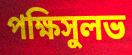
পক্ষিসুলভ